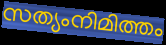
സത്യംനിമിത്തം